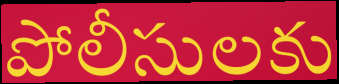
పోలీసులకు